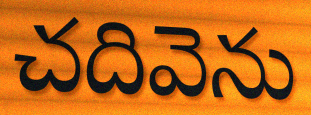
చదివెను